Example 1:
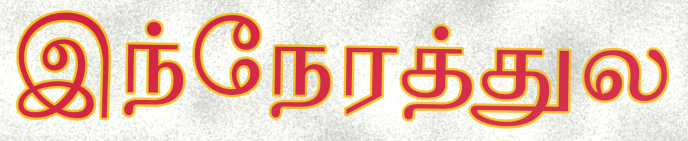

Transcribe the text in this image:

இந்நேரத்துல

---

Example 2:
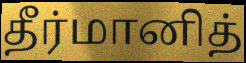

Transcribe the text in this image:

தீர்மானித்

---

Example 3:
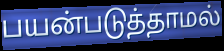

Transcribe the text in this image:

பயன்படுத்தாமல்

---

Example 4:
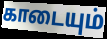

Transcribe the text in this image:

காடையும்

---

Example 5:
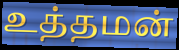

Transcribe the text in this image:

உத்தமன்